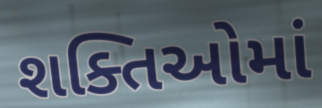
શક્તિઓમાં